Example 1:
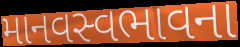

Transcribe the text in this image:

માનવસ્વભાવના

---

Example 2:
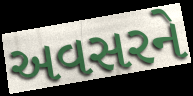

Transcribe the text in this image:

અવસરને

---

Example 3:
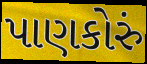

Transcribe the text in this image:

પાણકોરું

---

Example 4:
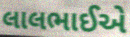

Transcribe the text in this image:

લાલભાઈએ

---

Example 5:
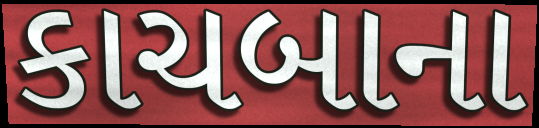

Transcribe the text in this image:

કાચબાના